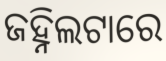
ଜହ୍ନିଲଟାରେ